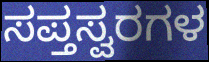
ಸಪ್ತಸ್ವರಗಳ